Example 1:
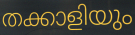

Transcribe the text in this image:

തക്കാളിയും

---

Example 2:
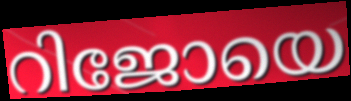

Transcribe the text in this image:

റിജോയെ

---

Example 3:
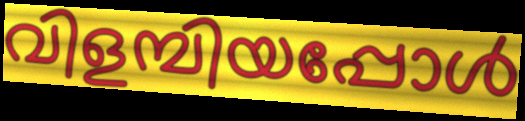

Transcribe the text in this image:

വിളമ്പിയപ്പോൾ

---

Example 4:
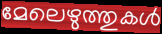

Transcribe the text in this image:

മേലെഴുത്തുകൾ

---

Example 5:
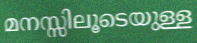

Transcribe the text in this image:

മനസ്സിലൂടെയുള്ള